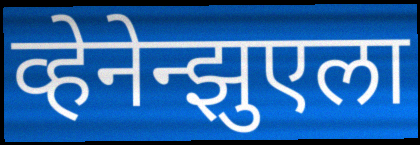
व्हेनेन्झुएला